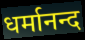
धर्मानन्द